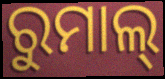
ରୁମାଲ୍